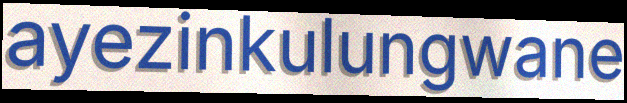
ayezinkulungwane